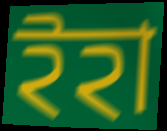
ইহা